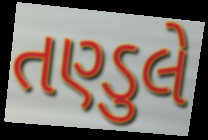
તણ્ડુલે